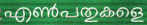
എൺപതുകളെ